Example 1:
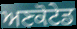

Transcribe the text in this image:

ਅਣਕੋਟੇਡ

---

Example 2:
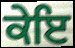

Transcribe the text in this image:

ਕੇਇ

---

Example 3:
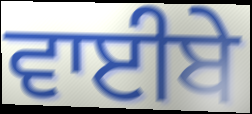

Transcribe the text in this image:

ਵਾਈਬੇ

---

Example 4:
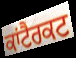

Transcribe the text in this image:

ਕਾਂਟੈਰਕਟ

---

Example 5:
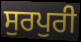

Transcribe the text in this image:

ਸੁਰਪੁਰੀ